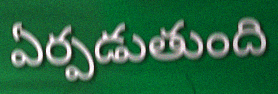
ఏర్పడుతుంది